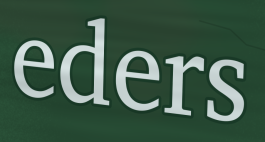
eders